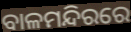
ବାଳମନ୍ଦିରରେ